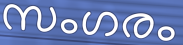
സംഗരം